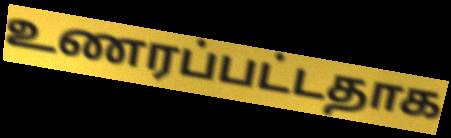
உணரப்பட்டதாக